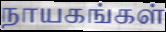
நாயகங்கள்